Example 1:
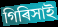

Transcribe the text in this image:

গিৰিসাই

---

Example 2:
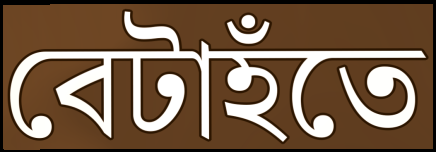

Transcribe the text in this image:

বেটাহঁতে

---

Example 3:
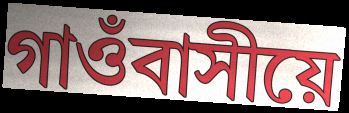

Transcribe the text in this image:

গাওঁবাসীয়ে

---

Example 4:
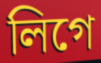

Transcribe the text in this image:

লিগে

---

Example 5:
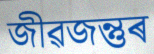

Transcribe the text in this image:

জীৱজন্তুৰ